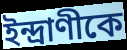
ইন্দ্রাণীকে